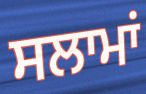
ਸਲਾਮਾਂ